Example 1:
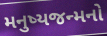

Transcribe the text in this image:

મનુષ્યજન્મનો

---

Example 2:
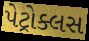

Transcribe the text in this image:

પેટ્રોક્લસ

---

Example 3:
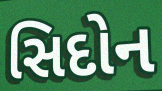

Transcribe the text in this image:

સિદોન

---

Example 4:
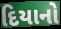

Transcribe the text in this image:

દિયાનો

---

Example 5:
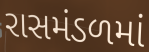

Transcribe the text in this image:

રાસમંડળમાં